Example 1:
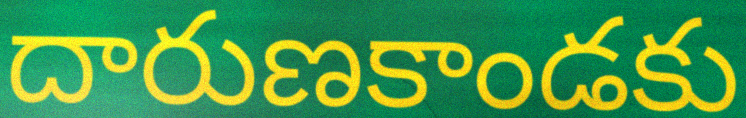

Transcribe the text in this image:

దారుణకాండకు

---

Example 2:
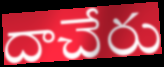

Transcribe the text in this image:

దాచేరు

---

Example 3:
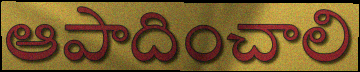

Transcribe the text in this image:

ఆపాదించాలి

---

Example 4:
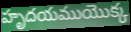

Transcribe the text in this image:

హృదయముయొక్క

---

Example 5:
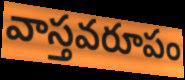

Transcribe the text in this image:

వాస్తవరూపం